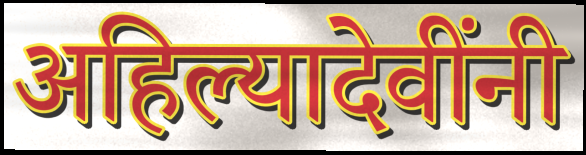
अहिल्यादेवींनी